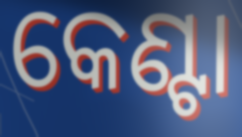
କେଣ୍ଟା